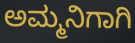
ಅಮ್ಮನಿಗಾಗಿ